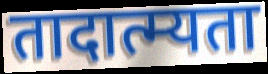
तादात्म्यता